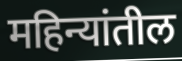
महिन्यांतील